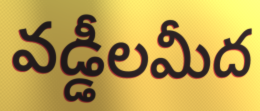
వడ్డీలమీద